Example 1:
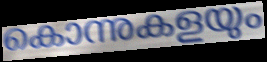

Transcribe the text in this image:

കൊന്നുകളയും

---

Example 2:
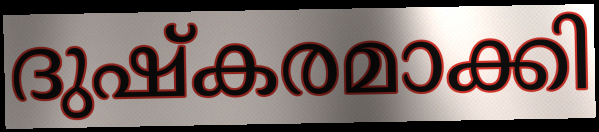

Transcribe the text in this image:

ദുഷ്കരമാക്കി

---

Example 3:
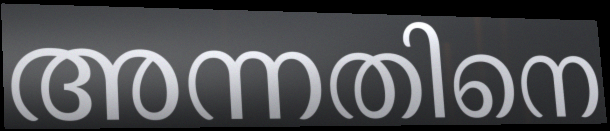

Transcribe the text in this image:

അന്നതിനെ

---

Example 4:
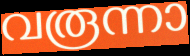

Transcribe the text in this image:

വരൂന്നാ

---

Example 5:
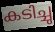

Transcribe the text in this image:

കടിച്ചു